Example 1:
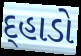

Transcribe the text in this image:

દ્હાડો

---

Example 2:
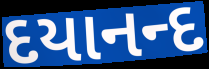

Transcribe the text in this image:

દયાનન્દ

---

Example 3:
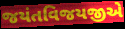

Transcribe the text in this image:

જયંતવિજયજીએ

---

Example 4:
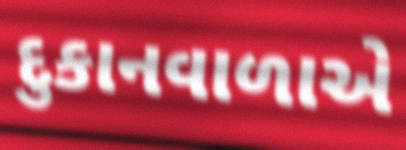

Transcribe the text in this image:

દુકાનવાળાએ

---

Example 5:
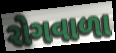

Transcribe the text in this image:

રોગવાળા